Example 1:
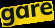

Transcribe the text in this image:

gare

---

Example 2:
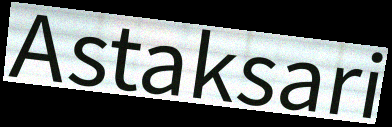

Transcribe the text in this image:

Astaksari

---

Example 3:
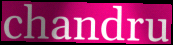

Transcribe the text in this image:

chandru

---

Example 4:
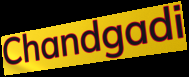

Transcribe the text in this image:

Chandgadi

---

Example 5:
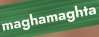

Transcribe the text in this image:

maghamaghta